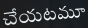
చేయటమూ